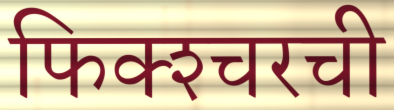
फिक्श्चरची